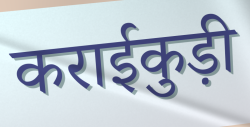
कराईकुड़ी